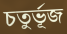
চতুৰ্ভূজ